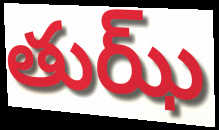
తుఝ్